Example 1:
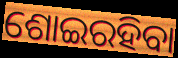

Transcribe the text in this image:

ଶୋଇରହିବା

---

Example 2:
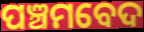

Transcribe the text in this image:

ପଞ୍ଚମବେଦ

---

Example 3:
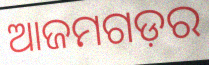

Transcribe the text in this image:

ଆଜମଗଡ଼ର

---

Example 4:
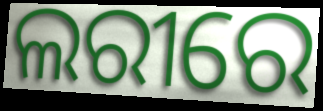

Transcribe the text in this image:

ଲରୀରେ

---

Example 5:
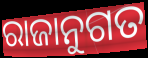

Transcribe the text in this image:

ରାଜାନୁଗତ